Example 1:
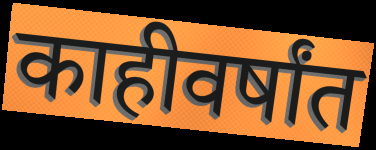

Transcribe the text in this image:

काहीवर्षांत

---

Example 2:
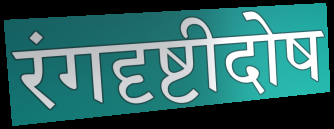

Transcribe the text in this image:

रंगदृष्टीदोष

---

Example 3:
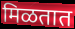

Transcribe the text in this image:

मिळतात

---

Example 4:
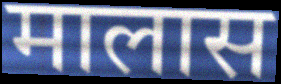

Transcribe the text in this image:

मालास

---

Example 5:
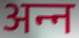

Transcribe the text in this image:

अन्न